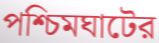
পশ্চিমঘাটের